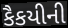
કૈકયીની